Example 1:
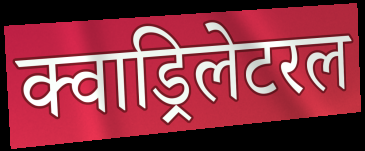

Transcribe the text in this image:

क्वाड्रिलेटरल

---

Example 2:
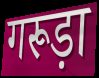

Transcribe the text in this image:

गरूड़ा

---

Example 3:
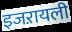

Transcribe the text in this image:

इजऱायली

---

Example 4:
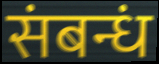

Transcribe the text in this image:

संबन्धं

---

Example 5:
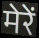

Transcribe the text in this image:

मेरें